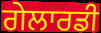
ਗੇਲਾਰਡੀ